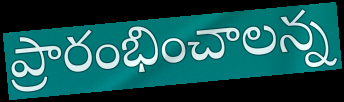
ప్రారంభించాలన్న